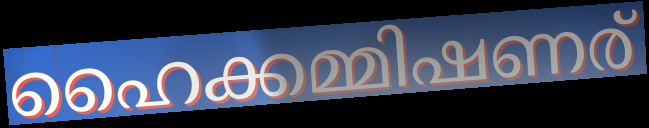
ഹൈക്കമ്മിഷണര്